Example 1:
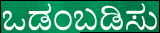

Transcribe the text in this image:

ಒಡಂಬಡಿಸು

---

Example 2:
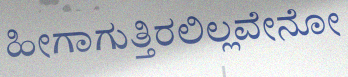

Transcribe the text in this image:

ಹೀಗಾಗುತ್ತಿರಲಿಲ್ಲವೇನೋ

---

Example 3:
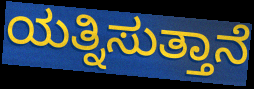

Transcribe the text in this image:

ಯತ್ನಿಸುತ್ತಾನೆ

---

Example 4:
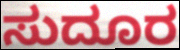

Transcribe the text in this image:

ಸುದೂರ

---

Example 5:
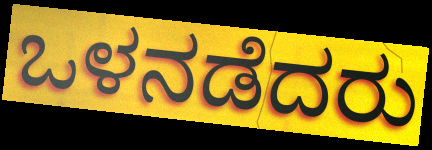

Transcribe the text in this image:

ಒಳನಡೆದರು